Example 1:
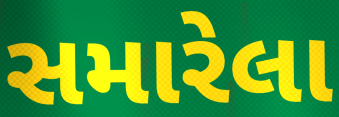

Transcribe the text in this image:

સમારેલા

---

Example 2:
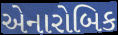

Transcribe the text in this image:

એનારોબિક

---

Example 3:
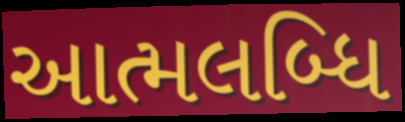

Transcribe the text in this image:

આત્મલબ્ધિ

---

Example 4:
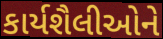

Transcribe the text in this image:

કાર્યશૈલીઓને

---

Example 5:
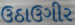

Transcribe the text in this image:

ઉઠાઉગીર